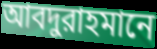
আবদুরাহমানে